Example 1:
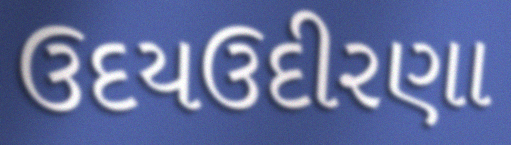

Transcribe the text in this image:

ઉદયઉદીરણા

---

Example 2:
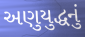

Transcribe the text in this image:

અણુયુદ્ધનું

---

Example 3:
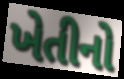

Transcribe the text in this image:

ખેતીનો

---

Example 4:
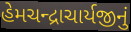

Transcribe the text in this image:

હેમચન્દ્રાચાર્યજીનું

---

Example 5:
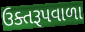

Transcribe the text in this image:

ઉક્તરૂપવાળા